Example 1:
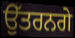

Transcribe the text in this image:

ਉੱਤਰਨਗੇ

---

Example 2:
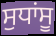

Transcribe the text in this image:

ਸੁਧਾਂਸੂ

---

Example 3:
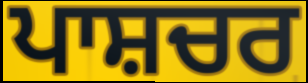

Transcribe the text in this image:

ਪਾਸ਼ਚਰ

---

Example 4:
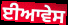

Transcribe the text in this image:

ਈਆਵੇਸ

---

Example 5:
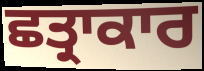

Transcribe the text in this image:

ਛਤ੍ਰਾਕਾਰ